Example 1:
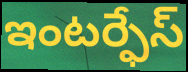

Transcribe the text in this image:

ఇంటర్ఫేస్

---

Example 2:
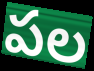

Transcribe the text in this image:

పల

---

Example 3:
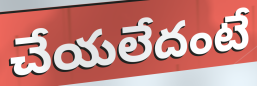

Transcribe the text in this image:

చేయలేదంటే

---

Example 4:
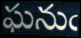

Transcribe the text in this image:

ఘనుఁ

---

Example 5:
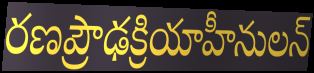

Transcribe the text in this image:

రణప్రౌఢక్రియాహీనులన్